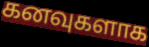
கனவுகளாக